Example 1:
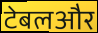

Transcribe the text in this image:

टेबलऔर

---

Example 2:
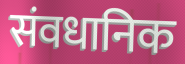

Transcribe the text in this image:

संवधानिक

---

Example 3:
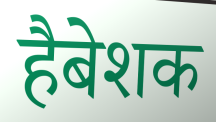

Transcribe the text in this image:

हैबेशक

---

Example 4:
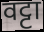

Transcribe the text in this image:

वट्टा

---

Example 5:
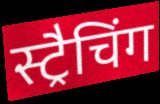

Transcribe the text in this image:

स्ट्रैचिंग